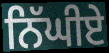
ਨਿੱਘੀਏ